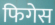
फिगेस